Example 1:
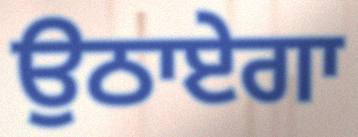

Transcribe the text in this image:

ਉਠਾਏਗਾ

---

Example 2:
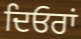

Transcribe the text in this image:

ਦਿਓਰਾਂ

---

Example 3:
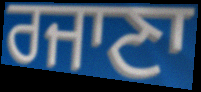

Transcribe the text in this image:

ਰਜਾਣਾ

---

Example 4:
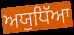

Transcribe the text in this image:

ਅਯੁਧਿੱਆ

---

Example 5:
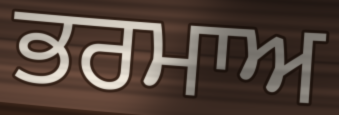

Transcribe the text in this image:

ਭਰਮਾਅ